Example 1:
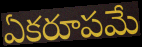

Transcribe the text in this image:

ఏకరూపమే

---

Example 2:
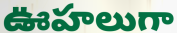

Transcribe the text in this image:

ఊహలుగా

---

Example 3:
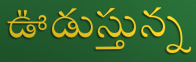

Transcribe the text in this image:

ఊడుస్తున్న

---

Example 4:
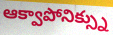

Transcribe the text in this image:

ఆక్వాపోనిక్స్ను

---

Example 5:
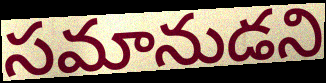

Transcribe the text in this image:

సమానుడని